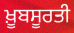
ਖ਼ੂਬਸੂਰਤੀ